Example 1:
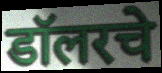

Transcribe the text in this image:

डॉलरचे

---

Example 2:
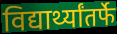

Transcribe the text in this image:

विद्यार्थ्यांतर्फे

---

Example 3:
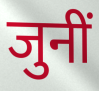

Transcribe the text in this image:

जुनीं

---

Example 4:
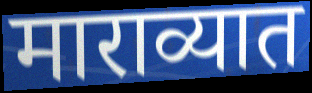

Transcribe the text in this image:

माराव्यात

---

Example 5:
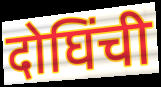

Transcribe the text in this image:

दोघिंची